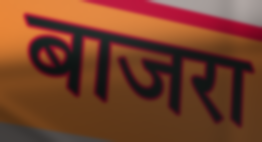
बाजरा